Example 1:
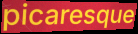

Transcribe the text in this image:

picaresque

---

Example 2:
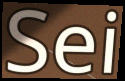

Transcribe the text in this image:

Sei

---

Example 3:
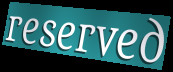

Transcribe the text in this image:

reserved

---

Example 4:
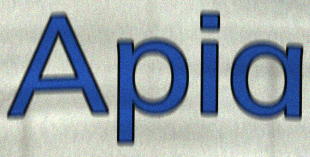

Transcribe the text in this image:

Apia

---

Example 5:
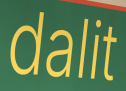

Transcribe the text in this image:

dalit